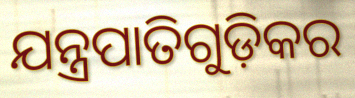
ଯନ୍ତ୍ରପାତିଗୁଡ଼ିକର